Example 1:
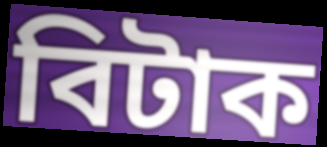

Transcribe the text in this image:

বিটাক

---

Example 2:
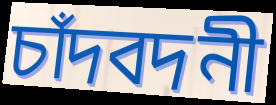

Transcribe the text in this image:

চাঁদবদনী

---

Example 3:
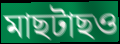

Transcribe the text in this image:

মাছটাছও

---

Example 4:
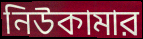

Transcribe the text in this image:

নিউকামার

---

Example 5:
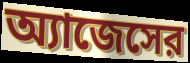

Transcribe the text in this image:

অ্যাজেসের